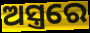
ଅସ୍ତ୍ରରେ